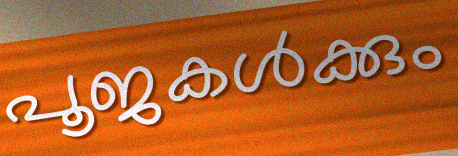
പൂജകൾക്കും